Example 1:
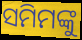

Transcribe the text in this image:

ସମିମଙ୍କୁ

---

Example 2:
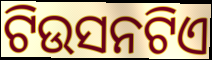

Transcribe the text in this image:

ଟିଉସନଟିଏ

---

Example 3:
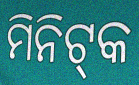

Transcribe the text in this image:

ମିନିଟ୍‌କ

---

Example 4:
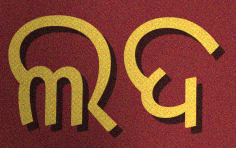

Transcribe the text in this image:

ଲଦ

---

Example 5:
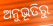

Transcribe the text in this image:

ଅନୁଭୂତିରୁ